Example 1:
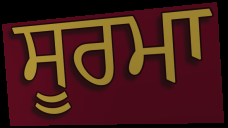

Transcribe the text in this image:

ਸੂਰਮਾ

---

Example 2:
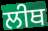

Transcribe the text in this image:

ਲੀਥ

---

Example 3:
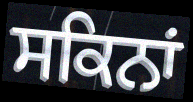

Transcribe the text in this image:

ਸਕਿਨਾਂ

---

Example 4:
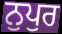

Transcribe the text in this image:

ਨੁਪੁਰ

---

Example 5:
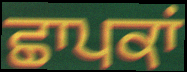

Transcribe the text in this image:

ਛਾਪਕਾਂ